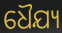
ଧୈଯ୍ୟ